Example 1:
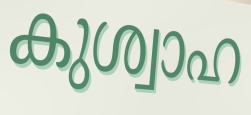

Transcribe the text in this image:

കുശ്വാഹ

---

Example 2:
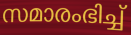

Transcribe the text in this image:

സമാരംഭിച്ച്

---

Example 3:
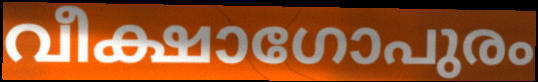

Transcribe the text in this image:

വീക്ഷാഗോപുരം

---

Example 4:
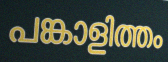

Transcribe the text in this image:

പങ്കാളിത്തം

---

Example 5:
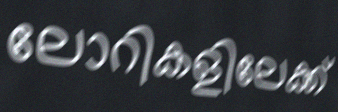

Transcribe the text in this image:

ലോറികളിലേക്ക്